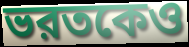
ভরতকেও